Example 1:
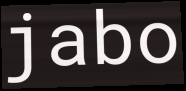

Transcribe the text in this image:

jabo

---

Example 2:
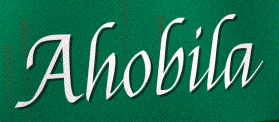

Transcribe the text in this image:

Ahobila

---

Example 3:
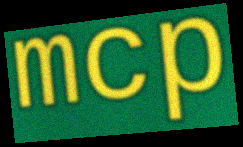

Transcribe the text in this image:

mcp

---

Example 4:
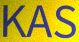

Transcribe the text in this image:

KAS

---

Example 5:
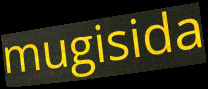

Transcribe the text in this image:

mugisida